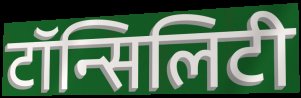
टॉन्सिलिटी